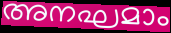
അനഘമാം